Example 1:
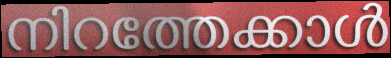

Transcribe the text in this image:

നിറത്തേക്കാൾ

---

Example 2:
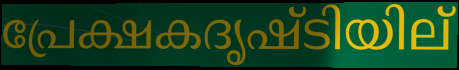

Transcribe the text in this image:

പ്രേക്ഷകദൃഷ്ടിയില്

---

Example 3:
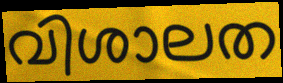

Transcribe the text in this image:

വിശാലത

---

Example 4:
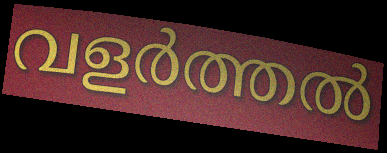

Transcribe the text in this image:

വളർത്തൽ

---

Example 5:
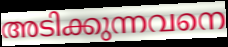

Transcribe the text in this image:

അടിക്കുന്നവനെ